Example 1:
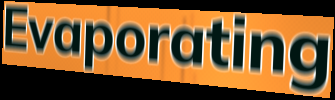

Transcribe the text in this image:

Evaporating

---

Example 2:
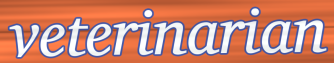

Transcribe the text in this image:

veterinarian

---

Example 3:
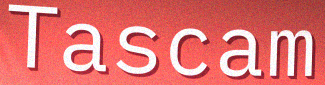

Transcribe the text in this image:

Tascam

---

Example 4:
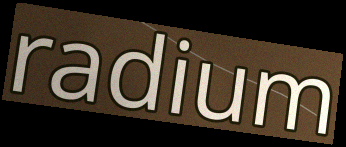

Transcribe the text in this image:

radium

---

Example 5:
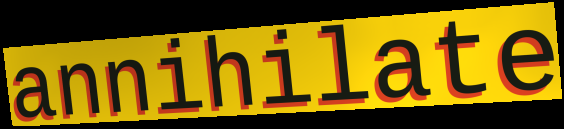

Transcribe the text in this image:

annihilate